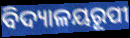
ବିଦ୍ୟାଳୟରୂପୀ